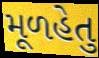
મૂળહેતુ